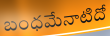
బంధమేనాటిదో